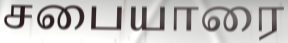
சபையாரை